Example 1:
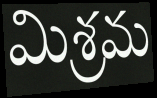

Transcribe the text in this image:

మిశ్రమ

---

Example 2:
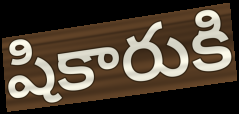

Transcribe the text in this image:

షికారుకి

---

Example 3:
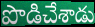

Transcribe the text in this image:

పొడిచేశాడు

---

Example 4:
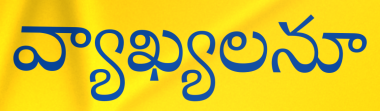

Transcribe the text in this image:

వ్యాఖ్యలనూ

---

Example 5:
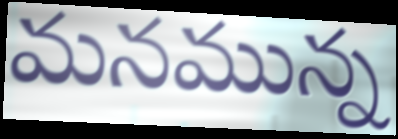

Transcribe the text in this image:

మనమున్న